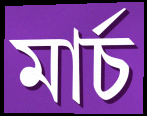
মাৰ্চ